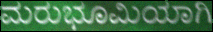
ಮರುಭೂಮಿಯಾಗಿ